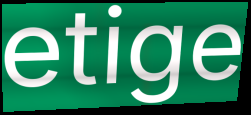
etige